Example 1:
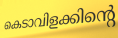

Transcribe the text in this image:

കെടാവിളക്കിന്റെ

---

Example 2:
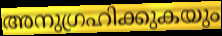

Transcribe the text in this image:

അനുഗ്രഹിക്കുകയും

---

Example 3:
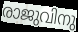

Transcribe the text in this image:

രാജുവിനു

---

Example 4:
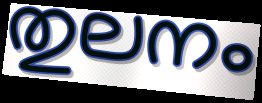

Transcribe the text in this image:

തുലനം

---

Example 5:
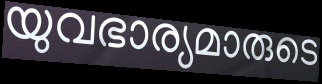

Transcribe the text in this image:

യുവഭാര്യമാരുടെ